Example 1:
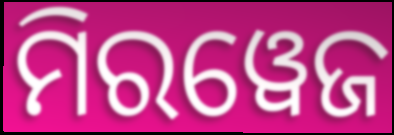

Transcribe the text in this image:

ମିରୱେଜ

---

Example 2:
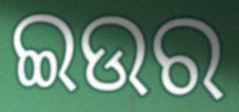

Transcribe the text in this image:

ଇଉର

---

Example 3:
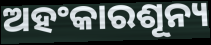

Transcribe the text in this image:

ଅହଂକାରଶୂନ୍ୟ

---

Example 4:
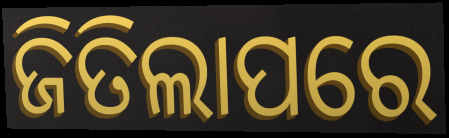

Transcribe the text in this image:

ଜିତିଲାପରେ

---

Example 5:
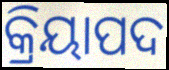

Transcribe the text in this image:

କ୍ରିୟାପଦ